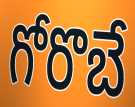
గోరొబే